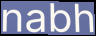
nabh